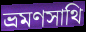
ভ্রমণসাথি